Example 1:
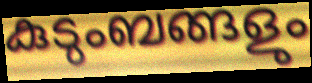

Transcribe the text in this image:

കുടുംബങ്ങളും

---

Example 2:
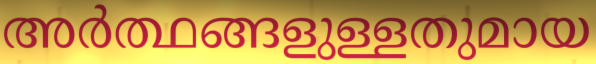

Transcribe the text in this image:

അർത്ഥങ്ങളുള്ളതുമായ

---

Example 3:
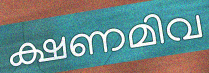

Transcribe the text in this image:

ക്ഷണമിവ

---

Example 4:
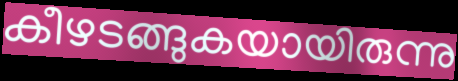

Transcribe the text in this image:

കീഴടങ്ങുകയായിരുന്നു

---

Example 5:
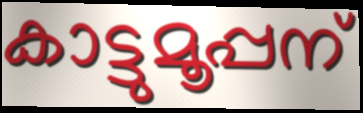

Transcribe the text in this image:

കാട്ടുമൂപ്പന്